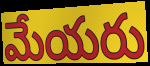
మేయరు